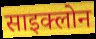
साइक्लोन